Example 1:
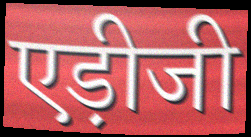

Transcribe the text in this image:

एड़ीजी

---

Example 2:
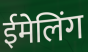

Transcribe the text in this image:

ईमेलिंग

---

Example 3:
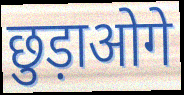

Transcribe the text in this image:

छुड़ाओगे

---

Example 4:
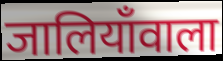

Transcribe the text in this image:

जालियाँवाला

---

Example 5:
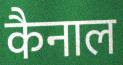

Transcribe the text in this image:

कैनाल